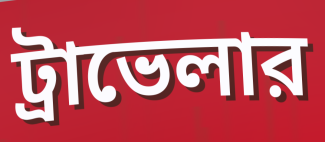
ট্রাভেলার